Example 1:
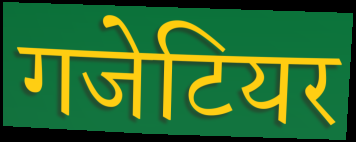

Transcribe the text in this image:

गजेटियर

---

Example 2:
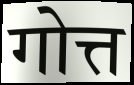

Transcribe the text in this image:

गोत्त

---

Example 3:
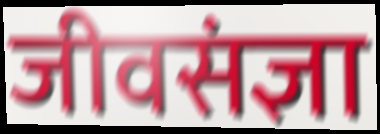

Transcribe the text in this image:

जीवसंज्ञा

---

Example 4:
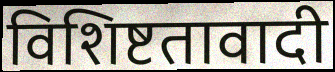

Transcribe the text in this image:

विशिष्टतावादी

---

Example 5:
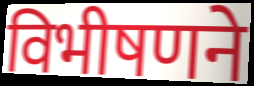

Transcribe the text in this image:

विभीषणने